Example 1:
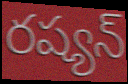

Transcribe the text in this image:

రష్యన్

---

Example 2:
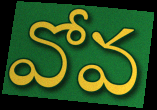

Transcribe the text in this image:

వోవ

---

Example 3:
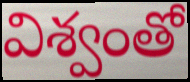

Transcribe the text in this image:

విశ్వంతో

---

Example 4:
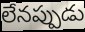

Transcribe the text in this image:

లేనప్పుడు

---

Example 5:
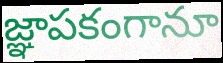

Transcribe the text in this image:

జ్ఞాపకంగానూ